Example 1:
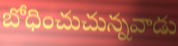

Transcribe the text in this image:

బోధించుచున్నవాడు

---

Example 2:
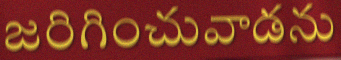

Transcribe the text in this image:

జరిగించువాడను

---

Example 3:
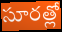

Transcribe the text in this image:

సూరత్లో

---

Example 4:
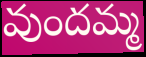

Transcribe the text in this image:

వుందమ్మ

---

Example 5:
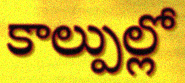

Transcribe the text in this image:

కాల్పుల్లో